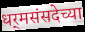
धर्मसंसदेच्या